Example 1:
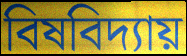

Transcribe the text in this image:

বিষবিদ্যায়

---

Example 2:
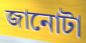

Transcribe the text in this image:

জানোটা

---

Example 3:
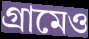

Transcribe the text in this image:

গ্রামেও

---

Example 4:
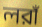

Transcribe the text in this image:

লরাঁ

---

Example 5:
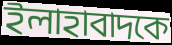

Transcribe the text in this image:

ইলাহাবাদকে